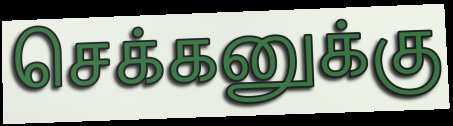
செக்கனுக்கு